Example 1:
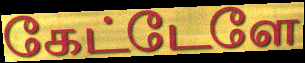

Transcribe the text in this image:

கேட்டேளே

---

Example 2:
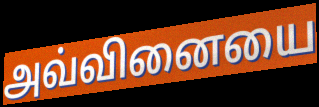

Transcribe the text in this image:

அவ்வினையை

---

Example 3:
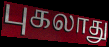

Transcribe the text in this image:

புகலாது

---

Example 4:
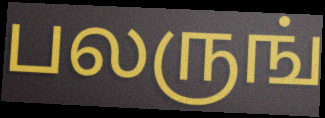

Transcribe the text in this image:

பலருங்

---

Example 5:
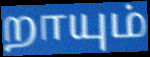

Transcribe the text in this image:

றாயும்